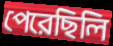
পেরেছিলি